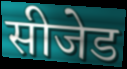
सीजेड